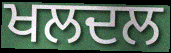
ਖਲਦਲ